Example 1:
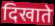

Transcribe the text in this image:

दिखाते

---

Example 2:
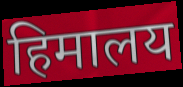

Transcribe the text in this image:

हिमालय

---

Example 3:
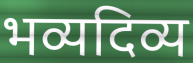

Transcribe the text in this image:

भव्यदिव्य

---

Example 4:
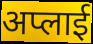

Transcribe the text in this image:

अप्लाई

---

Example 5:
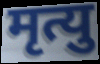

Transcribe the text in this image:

मृत्यु